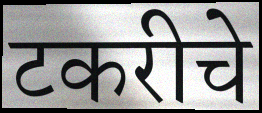
टकरीचे